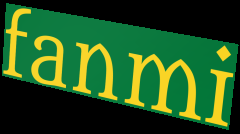
fanmi